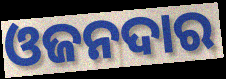
ଓଜନଦାର